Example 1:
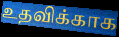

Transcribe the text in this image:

உதவிக்காக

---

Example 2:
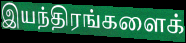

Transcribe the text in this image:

இயந்திரங்களைக்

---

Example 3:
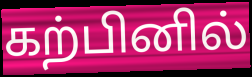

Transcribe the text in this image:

கற்பினில்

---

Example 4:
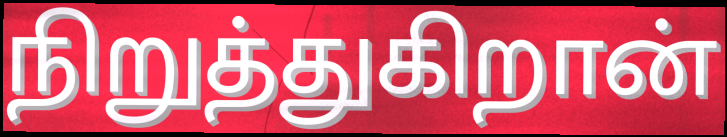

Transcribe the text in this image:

நிறுத்துகிறான்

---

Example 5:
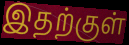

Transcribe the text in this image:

இதற்குள்